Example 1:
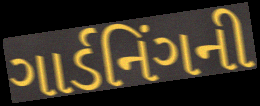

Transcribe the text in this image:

ગાર્ડનિંગની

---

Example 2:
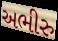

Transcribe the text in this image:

અભીરુ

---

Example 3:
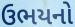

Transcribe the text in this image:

ઉભયનો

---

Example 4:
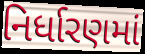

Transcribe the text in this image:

નિર્ધારણમાં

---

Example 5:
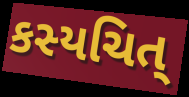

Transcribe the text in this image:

કસ્યચિત્